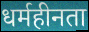
धर्महीनता